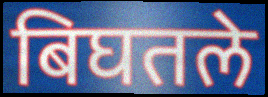
बिघतले